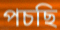
পচছি